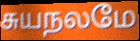
சுயநலமே